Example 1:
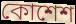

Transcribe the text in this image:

কোশেশ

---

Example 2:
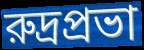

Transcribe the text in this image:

রুদ্রপ্রভা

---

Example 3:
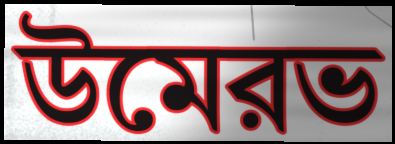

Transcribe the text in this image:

উমেরভ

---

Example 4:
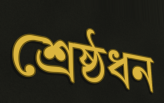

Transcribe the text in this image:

শ্রেষ্ঠধন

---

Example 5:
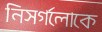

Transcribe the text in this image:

নিসর্গলোকে